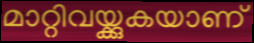
മാറ്റിവയ്ക്കുകയാണ്